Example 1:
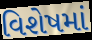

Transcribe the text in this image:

વિશેષમાં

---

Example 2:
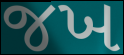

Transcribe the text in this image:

જખ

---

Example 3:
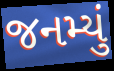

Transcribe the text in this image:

જનમ્યું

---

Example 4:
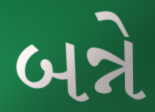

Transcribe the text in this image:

બન્ને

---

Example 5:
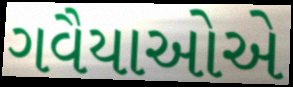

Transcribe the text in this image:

ગવૈયાઓએ